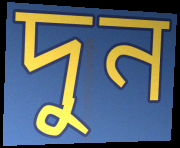
দুন